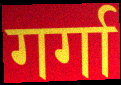
गर्गा